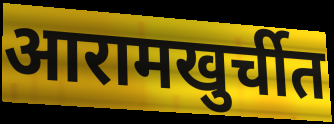
आरामखुर्चीत